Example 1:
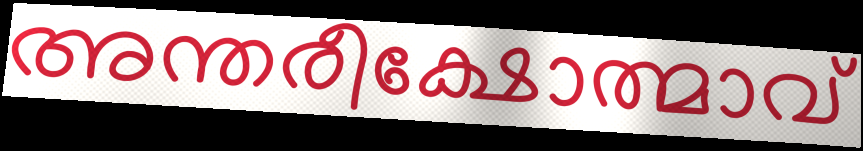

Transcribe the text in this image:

അന്തരീക്ഷോത്മാവ്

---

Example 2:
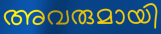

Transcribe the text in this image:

അവരുമായി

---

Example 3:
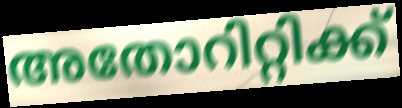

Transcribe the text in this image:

അതോറിറ്റിക്ക്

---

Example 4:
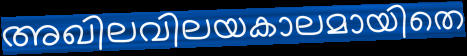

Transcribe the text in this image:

അഖിലവിലയകാലമായിതെ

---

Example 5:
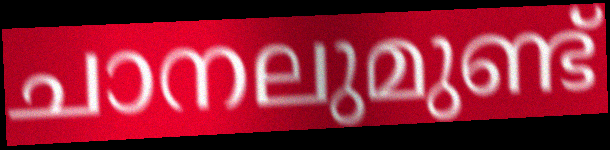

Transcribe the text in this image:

ചാനലുമുണ്ട്